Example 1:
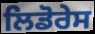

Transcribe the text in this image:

ਲਿਡੋਰੇਸ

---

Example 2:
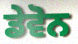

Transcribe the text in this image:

ਡੇਵੋਨ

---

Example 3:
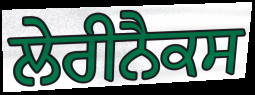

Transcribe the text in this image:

ਲੇਰੀਨੈਕਸ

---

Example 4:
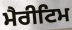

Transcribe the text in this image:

ਮੈਰੀਟਿਮ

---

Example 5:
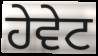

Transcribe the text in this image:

ਹੇਵੇਟ